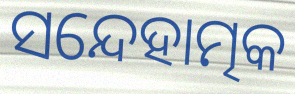
ସନ୍ଦେହାତ୍ମକ